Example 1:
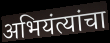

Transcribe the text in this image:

अभियंत्यांचा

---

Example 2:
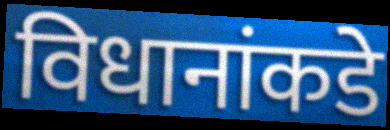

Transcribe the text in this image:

विधानांकडे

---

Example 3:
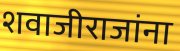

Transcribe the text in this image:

शवाजीराजांना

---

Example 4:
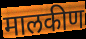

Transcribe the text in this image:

मालकीण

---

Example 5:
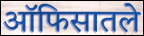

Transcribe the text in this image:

ऑफिसातले